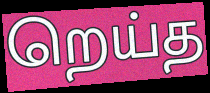
றெய்த